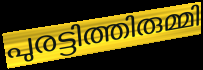
പുരട്ടിത്തിരുമ്മി